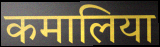
कमालिया